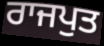
ਰਾਜਪੁਤ